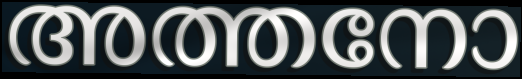
അത്തനോ